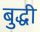
बुद्धी